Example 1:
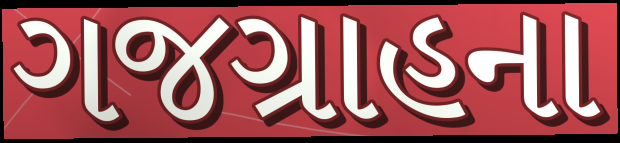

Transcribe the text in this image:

ગજગ્રાહના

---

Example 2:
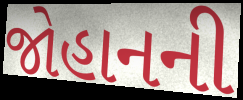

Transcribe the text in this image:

જોહાનની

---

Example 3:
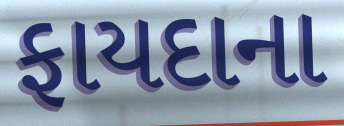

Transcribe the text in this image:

ફાયદાના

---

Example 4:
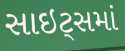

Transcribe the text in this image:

સાઇટ્સમાં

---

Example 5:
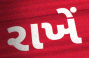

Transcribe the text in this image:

રાખેં